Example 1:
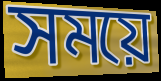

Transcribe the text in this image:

সময়ে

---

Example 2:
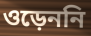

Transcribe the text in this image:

ওড়েননি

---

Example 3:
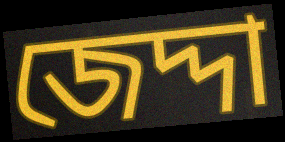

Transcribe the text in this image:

জেদ্দা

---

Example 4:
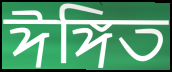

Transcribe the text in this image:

ঈঙ্গিত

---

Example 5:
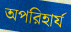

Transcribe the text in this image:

অপরিহার্য